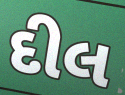
દીલ